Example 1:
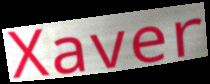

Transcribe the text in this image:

Xaver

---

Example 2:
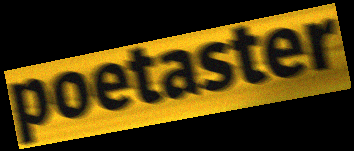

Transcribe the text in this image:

poetaster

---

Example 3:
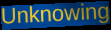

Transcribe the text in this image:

Unknowing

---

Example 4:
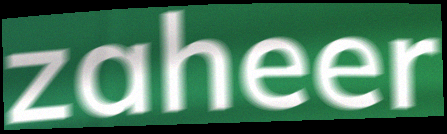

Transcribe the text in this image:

zaheer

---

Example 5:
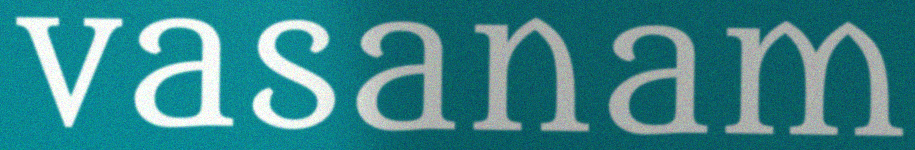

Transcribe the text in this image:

vasanam